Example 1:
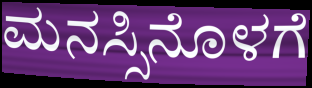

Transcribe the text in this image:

ಮನಸ್ಸಿನೊಳಗೆ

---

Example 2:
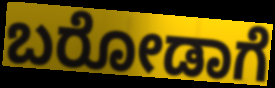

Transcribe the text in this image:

ಬರೋಡಾಗೆ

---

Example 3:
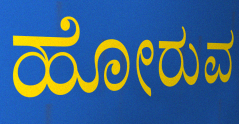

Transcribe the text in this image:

ಹೋರುವ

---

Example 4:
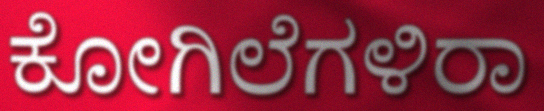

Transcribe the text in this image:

ಕೋಗಿಲೆಗಳಿರಾ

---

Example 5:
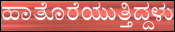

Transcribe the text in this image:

ಹಾತೊರೆಯುತ್ತಿದ್ದಳು